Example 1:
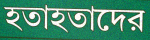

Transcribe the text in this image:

হতাহতাদের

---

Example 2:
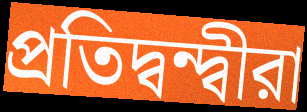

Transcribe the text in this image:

প্রতিদ্বন্দ্বীরা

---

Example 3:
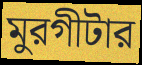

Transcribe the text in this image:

মুরগীটার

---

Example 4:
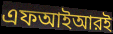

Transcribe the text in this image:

এফআইআরই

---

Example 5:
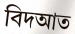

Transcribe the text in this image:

বিদআত